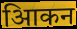
आिकन